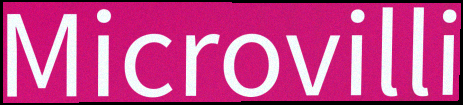
Microvilli